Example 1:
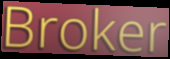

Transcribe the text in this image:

Broker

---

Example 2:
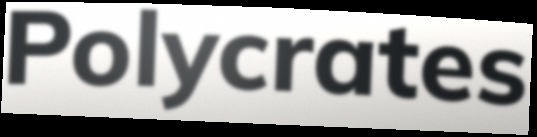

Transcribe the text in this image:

Polycrates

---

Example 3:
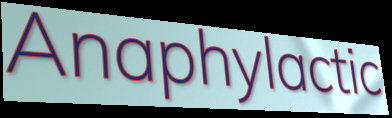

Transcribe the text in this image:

Anaphylactic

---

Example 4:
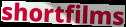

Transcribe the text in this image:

shortfilms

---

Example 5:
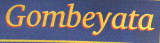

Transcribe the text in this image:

Gombeyata